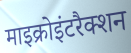
माइक्रोइंटरैक्शन